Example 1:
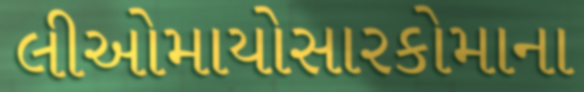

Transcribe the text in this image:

લીઓમાયોસારકોમાના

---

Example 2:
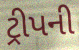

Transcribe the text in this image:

ટ્રીપની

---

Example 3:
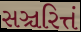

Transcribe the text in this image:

સઞ્ચરિત્તં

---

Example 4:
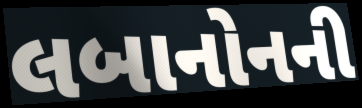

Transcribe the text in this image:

લબાનોનની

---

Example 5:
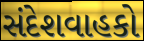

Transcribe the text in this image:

સંદેશવાહકો